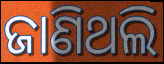
ଜାଣିଥଲି